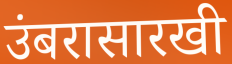
उंबरासारखी